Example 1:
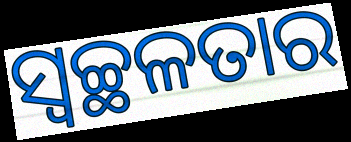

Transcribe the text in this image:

ସ୍ଵଚ୍ଛଳତାର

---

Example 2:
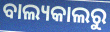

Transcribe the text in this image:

ବାଲ୍ୟକାଲରୁ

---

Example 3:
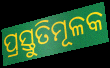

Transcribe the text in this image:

ପ୍ରସ୍ତୁତିମୂଳକ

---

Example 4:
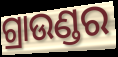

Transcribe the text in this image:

ଗ୍ରାଉଣ୍ଡର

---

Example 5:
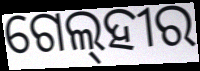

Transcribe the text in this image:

ଗେଲ୍‌ହୀର